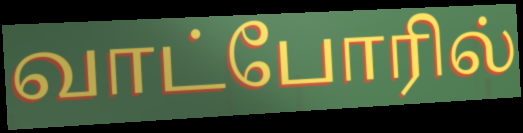
வாட்போரில்